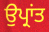
ਉਪ੍ਰਾਂਤ